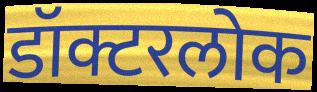
डॉक्टरलोक